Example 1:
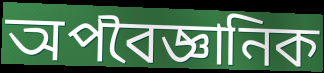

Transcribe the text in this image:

অপবৈজ্ঞানিক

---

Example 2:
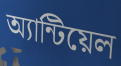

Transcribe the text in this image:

অ্যান্টিয়েল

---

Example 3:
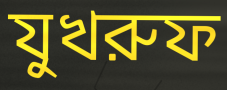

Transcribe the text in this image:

যুখরুফ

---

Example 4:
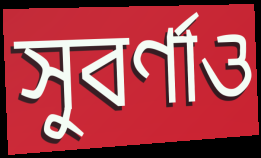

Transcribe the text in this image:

সুবর্ণাও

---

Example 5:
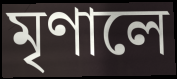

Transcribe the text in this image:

মৃণালে